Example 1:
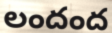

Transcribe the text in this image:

లందంద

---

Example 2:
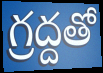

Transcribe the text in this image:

గ్రద్దతో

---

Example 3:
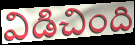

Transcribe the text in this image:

విడిచింది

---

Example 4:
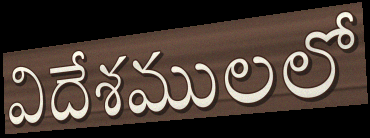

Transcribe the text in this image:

విదేశములలో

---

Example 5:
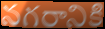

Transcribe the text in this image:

నగరానికి